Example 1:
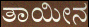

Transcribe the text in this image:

ತಾಯೀನ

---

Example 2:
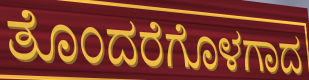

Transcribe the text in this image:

ತೊಂದರೆಗೊಳಗಾದ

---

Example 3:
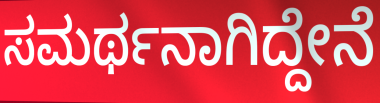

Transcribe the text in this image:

ಸಮರ್ಥನಾಗಿದ್ದೇನೆ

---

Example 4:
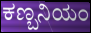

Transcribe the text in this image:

ಕಣ್ಬನಿಯಂ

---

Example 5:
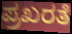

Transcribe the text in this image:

ಪ್ರಖರತೆ